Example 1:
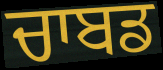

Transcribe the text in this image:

ਚਾਬਡ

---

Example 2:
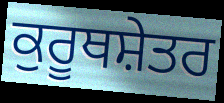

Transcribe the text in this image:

ਕੁਰੂਥਸ਼ੇਤਰ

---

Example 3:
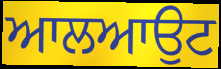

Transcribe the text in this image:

ਆਲਆਉਟ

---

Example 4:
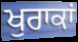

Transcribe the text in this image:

ਖੁਰਾਕਾਂ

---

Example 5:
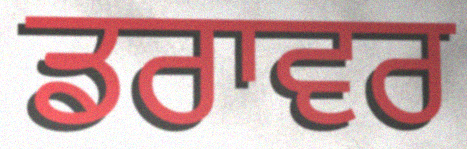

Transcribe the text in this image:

ਡਰਾਵਰ